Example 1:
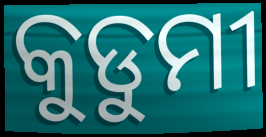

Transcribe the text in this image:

କୁଡୁମୀ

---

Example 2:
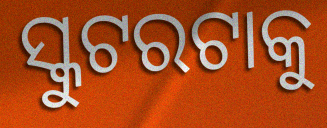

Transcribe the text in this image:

ସ୍କୁଟରଟାକୁ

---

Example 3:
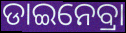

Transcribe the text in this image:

ଡାଇନେବ୍ରା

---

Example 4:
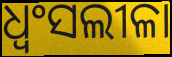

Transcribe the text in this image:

ଧ୍ବଂସଲୀଳା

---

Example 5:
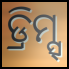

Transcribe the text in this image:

ଡ୍ରିମ୍ସ୍